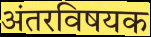
अंतरविषयक